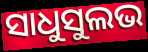
ସାଧୁସୁଲଭ